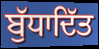
ਬੁੱਧਾਦਿੱਤ